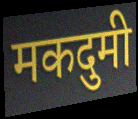
मकदुमी